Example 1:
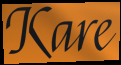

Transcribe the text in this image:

Kare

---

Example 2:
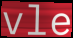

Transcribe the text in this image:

vle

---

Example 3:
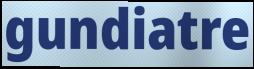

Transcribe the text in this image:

gundiatre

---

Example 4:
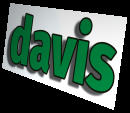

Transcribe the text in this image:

davis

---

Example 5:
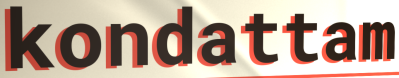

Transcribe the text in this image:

kondattam